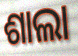
ଶାଲା